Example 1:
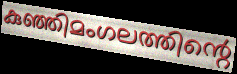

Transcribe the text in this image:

കുഞ്ഞിമംഗലത്തിന്റെ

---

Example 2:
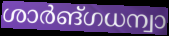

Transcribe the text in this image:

ശാർങ്ഗധന്വാ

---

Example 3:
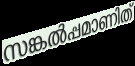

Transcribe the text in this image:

സങ്കൽപ്പമാണിത്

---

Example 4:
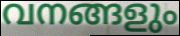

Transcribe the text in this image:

വനങ്ങളും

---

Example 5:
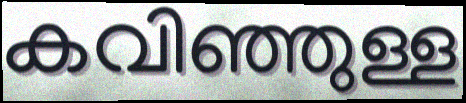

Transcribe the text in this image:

കവിഞ്ഞുള്ള